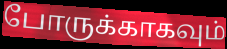
போருக்காகவும்